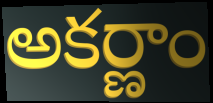
అకర్ణాం